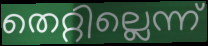
തെറ്റില്ലെന്ന്